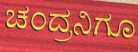
ಚಂದ್ರನಿಗೂ